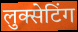
लुक्सेटिंग